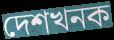
দেশখনক